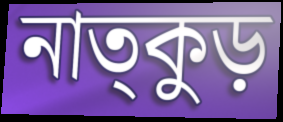
নাত্কুড়